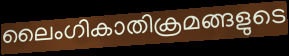
ലൈംഗികാതിക്രമങ്ങളുടെ